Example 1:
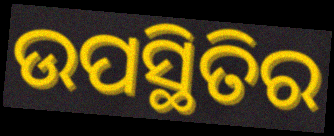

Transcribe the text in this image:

ଉପସ୍ଥିତିର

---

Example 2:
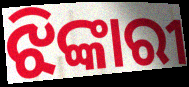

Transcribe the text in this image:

ଝିଙ୍କାରୀ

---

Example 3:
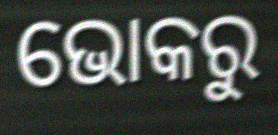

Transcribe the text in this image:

ଭୋକରୁ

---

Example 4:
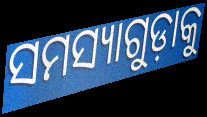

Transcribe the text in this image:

ସମସ୍ୟାଗୁଡ଼ାକୁ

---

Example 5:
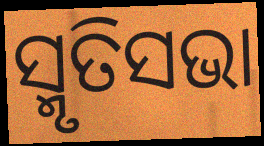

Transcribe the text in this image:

ସ୍ମୃତିସଭା